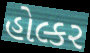
હોલ્કર